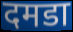
दमडा